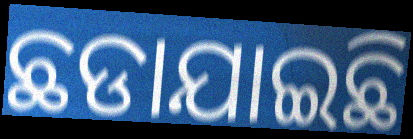
ଛଡାଯାଇଛି